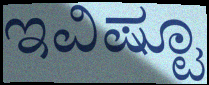
ಇವಿಷ್ಟೂ